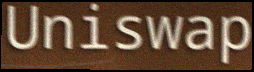
Uniswap